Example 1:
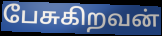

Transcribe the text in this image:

பேசுகிறவன்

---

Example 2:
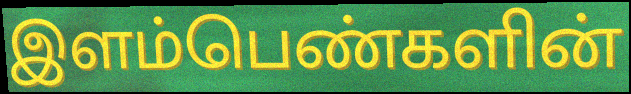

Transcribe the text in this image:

இளம்பெண்களின்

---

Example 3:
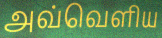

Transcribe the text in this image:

அவ்வெளிய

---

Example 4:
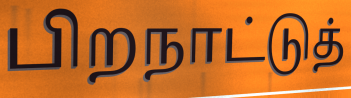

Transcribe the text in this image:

பிறநாட்டுத்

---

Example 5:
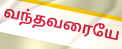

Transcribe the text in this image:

வந்தவரையே